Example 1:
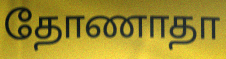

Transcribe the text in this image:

தோணாதா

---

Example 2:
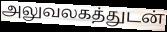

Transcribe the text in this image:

அலுவலகத்துடன்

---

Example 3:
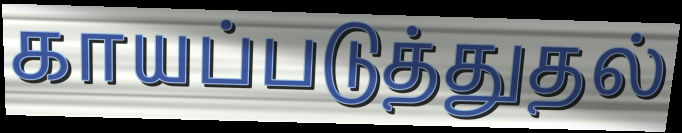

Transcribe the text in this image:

காயப்படுத்துதல்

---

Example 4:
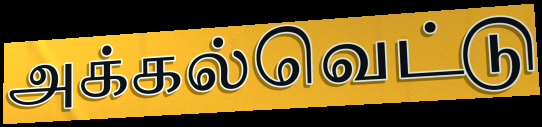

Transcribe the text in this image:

அக்கல்வெட்டு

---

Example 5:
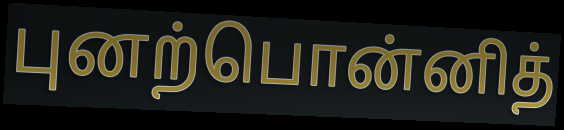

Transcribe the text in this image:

புனற்பொன்னித்